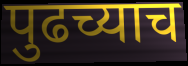
पुढच्याच